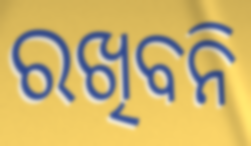
ରଖିବନି